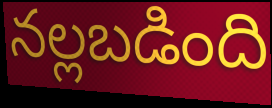
నల్లబడింది